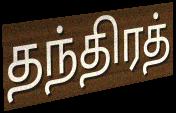
தந்திரத்